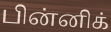
பின்னிக்